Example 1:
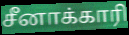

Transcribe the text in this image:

சீனாக்காரி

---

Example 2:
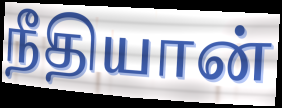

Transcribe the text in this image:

நீதியான்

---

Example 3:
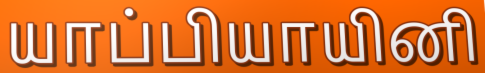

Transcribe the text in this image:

யாப்பியாயினி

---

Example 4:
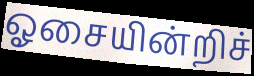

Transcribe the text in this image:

ஓசையின்றிச்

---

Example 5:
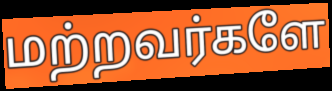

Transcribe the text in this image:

மற்றவர்களே